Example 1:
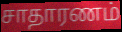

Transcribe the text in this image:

சாதாரணம்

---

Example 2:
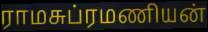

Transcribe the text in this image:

ராமசுப்ரமணியன்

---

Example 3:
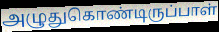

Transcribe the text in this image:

அழுதுகொண்டிருப்பாள்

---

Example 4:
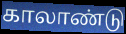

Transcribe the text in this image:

காலாண்டு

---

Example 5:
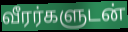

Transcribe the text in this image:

வீரர்களுடன்